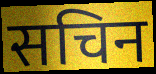
सचिन